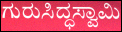
ಗುರುಸಿದ್ಧಸ್ವಾಮಿ